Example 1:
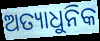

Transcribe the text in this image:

ଅତ୍ୟାଧୁନିକ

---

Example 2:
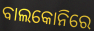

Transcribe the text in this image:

ବାଲକୋନିରେ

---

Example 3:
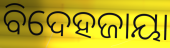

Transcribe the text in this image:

ବିଦେହଜାୟା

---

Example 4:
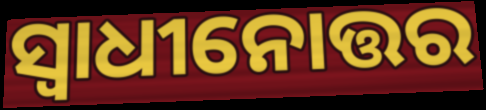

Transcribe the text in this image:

ସ୍ୱାଧୀନୋତ୍ତର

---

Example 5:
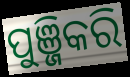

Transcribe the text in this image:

ପୁଞ୍ଜିକରି